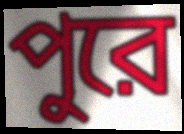
পুরে